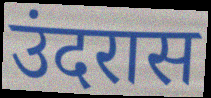
उंदरास